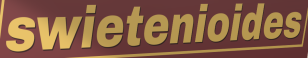
swietenioides